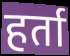
हर्ता